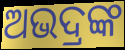
ଅଭଦ୍ରଙ୍କ